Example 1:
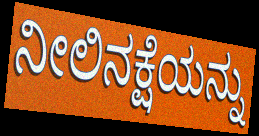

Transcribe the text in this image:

ನೀಲಿನಕ್ಷೆಯನ್ನು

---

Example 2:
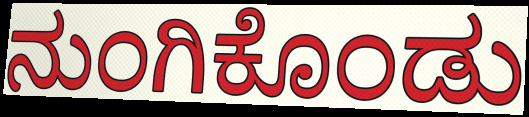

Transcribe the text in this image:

ನುಂಗಿಕೊಂಡು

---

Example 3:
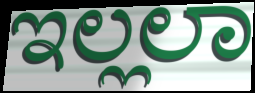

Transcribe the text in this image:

ಇಲ್ಲಲಾ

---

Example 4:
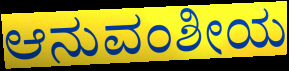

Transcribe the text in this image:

ಆನುವಂಶೀಯ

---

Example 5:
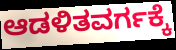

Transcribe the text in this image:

ಆಡಳಿತವರ್ಗಕ್ಕೆ